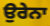
ਉਰੇਨਾ